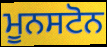
ਮੂਨਸਟੋਨ